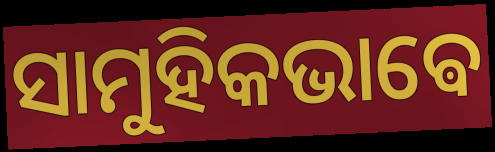
ସାମୁହିକଭାଵେ